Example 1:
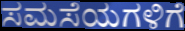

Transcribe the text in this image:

ಸಮಸೆಯಗಳಿಗೆ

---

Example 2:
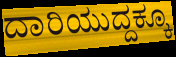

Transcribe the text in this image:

ದಾರಿಯುದ್ದಕ್ಕೂ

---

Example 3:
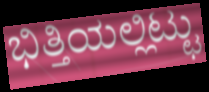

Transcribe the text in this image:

ಭಿತ್ತಿಯಲ್ಲಿಟ್ಟು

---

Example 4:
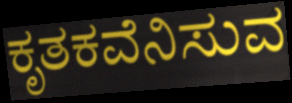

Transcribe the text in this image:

ಕೃತಕವೆನಿಸುವ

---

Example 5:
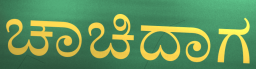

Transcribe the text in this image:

ಚಾಚಿದಾಗ